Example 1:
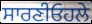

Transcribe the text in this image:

ਸਾਰਣੀਓਹਲੇ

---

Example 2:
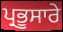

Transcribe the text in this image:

ਪ੍ਰਭੂਸਾਰੇ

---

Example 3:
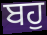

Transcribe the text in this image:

ਬਹੁ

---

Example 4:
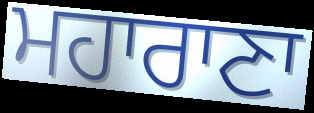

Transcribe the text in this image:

ਮਹਾਰਾਣਾ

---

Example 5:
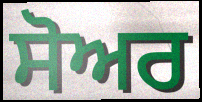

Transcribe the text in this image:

ਸੋਅਰ